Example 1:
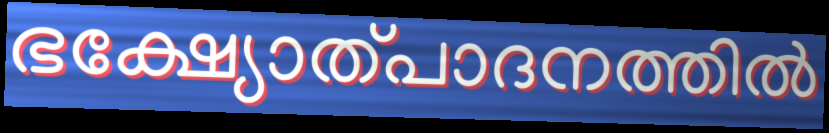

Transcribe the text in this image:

ഭക്ഷ്യോത്പാദനത്തിൽ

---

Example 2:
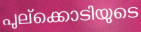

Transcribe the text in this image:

പുല്ക്കൊടിയുടെ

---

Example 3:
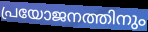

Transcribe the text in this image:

പ്രയോജനത്തിനും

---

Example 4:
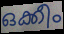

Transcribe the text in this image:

ഒക്കീം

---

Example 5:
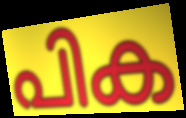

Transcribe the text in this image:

പിക